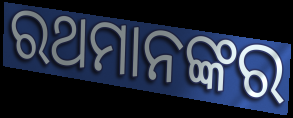
ରଥମାନଙ୍କର